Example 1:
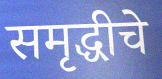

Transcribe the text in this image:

समृद्धीचे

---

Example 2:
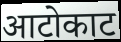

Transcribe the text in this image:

आटोकाट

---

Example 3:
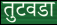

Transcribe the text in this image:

तुटवडा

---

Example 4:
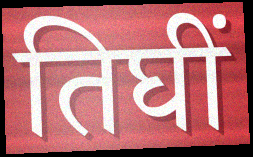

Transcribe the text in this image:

तिघीं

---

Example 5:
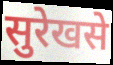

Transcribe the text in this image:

सुरेखसे